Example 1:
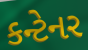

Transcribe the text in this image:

કન્ટેનર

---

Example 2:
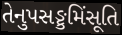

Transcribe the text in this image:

તેનુપસઙ્કમિંસૂતિ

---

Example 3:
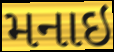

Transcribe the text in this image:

મનાઇ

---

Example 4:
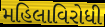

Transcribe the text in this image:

મહિલાવિરોધી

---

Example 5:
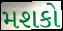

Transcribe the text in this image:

મશકો